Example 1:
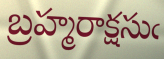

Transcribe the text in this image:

బ్రహ్మరాక్షసుఁ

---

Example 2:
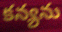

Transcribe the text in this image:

కన్యను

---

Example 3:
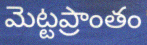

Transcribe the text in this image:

మెట్టప్రాంతం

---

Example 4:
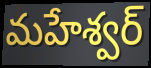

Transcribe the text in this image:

మహేశ్వర్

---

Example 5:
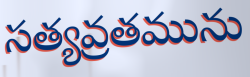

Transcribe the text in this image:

సత్యవ్రతమును